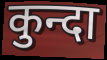
कुन्दा